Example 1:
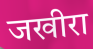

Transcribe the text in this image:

जखीरा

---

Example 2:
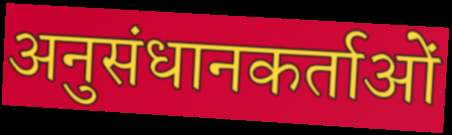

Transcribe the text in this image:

अनुसंधानकर्ताओं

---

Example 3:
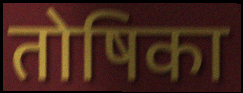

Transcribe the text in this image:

तोषिका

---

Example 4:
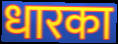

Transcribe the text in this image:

धारका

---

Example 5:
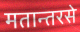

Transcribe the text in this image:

मतान्तरसे